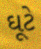
ઘૂટે